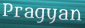
Pragyan